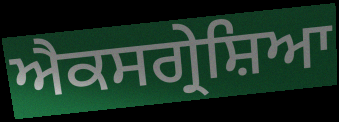
ਐਕਸਗ੍ਰੇਸ਼ਿਆ